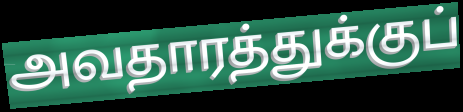
அவதாரத்துக்குப்